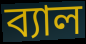
ব্যাল